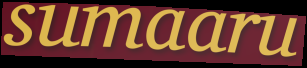
sumaaru